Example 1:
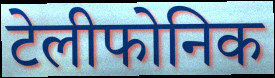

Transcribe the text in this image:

टेलीफोनिक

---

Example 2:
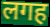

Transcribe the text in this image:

लगह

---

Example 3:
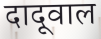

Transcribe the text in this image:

दादूवाल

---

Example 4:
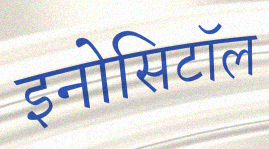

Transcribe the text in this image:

इनोसिटॉल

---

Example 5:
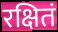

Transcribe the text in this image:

रक्षितं